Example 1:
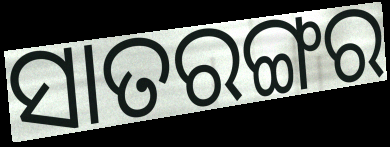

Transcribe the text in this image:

ସାତରଙ୍ଗର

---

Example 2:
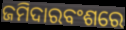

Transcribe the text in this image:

ଜମିଦାରବଂଶରେ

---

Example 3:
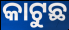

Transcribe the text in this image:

କାଟୁଛ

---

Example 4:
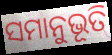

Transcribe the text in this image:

ସମାନୁଭୂତି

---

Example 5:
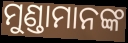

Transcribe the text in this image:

ମୁଣ୍ଡାମାନଙ୍କ